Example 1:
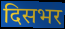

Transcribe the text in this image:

दिसभर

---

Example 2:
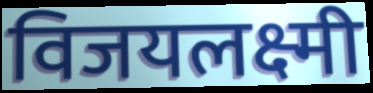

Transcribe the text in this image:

विजयलक्ष्मी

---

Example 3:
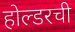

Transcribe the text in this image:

होल्डरची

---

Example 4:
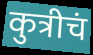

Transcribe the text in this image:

कुत्रीचं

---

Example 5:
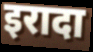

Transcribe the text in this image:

इरादा